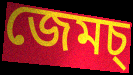
জেমচ্